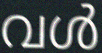
വൾ